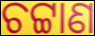
ଚଟ୍ଟାଣ